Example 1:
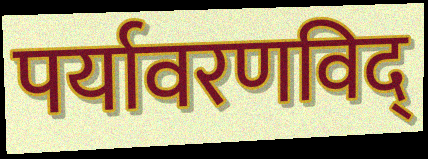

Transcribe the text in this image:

पर्यावरणविद्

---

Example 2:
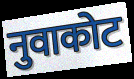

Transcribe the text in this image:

नुवाकोट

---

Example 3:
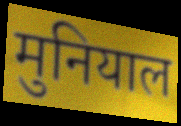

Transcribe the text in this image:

मुनियाल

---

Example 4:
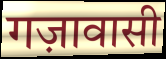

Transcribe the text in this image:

गज़ावासी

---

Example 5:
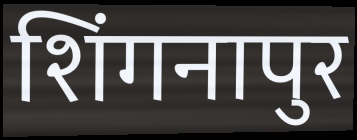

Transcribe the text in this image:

शिंगनापुर